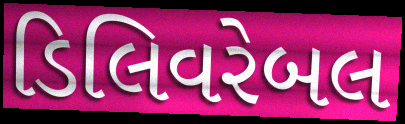
ડિલિવરેબલ